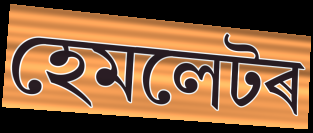
হেমলেটৰ